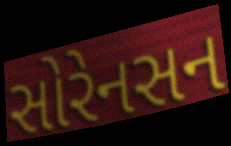
સોરેનસન